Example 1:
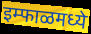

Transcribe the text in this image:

इम्फाळमध्ये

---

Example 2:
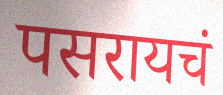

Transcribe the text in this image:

पसरायचं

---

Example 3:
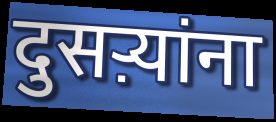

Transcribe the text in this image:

दुसऱ्‍यांना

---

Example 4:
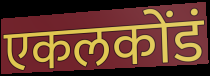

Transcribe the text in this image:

एकलकोंडं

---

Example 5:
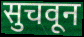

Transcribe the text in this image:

सुचवून